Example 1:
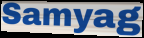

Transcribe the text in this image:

Samyag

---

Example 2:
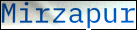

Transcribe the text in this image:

Mirzapur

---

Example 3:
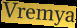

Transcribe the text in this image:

Vremya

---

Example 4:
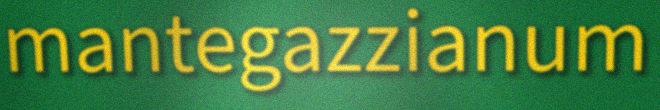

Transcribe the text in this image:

mantegazzianum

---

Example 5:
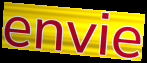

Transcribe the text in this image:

envie